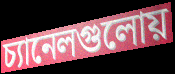
চ্যানেলগুলোয়